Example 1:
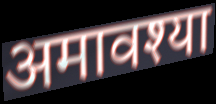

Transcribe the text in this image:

अमावश्या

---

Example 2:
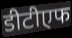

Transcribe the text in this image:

डीटीएफ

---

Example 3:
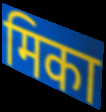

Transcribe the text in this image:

मिका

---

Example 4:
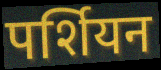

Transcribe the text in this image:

पर्शियन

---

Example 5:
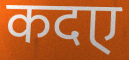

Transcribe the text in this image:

कदए